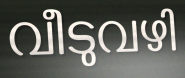
വീടുവഴി